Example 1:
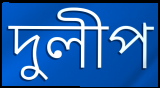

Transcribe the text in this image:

দুলীপ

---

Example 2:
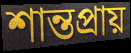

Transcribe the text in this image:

শান্তপ্রায়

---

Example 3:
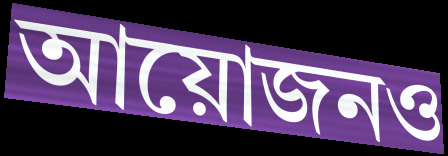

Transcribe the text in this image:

আয়োজনও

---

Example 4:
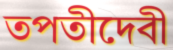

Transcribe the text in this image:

তপতীদেবী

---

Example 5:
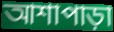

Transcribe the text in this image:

আশাপাড়া